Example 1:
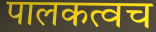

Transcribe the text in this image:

पालकत्वच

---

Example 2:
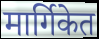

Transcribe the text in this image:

मार्गिकेत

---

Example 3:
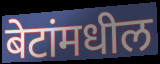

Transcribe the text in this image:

बेटांमधील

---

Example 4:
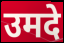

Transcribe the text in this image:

उमदे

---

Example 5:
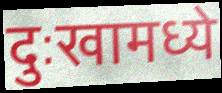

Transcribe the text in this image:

दुःखामध्ये